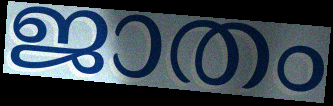
ജാതം